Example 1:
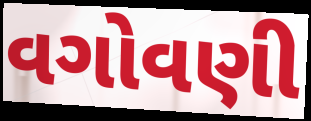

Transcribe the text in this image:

વગોવણી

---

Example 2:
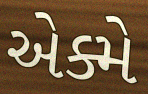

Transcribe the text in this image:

એક્મે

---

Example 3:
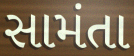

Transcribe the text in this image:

સામંતા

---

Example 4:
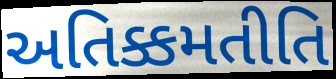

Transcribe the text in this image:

અતિક્કમતીતિ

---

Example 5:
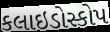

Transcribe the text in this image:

કલાઇડોસ્કોપ